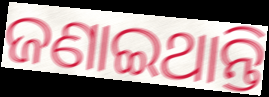
ଜଣାଇଥାନ୍ତି